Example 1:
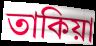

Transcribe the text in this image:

তাকিয়া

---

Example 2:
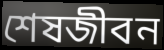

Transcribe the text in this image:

শেষজীবন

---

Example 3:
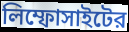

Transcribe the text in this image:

লিম্ফোসাইটের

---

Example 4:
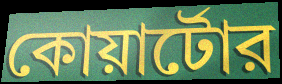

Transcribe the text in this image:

কোয়ার্টোর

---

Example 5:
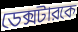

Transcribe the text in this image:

ডেক্সটারকে